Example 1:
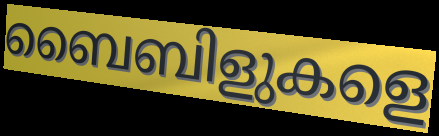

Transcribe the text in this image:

ബൈബിളുകളെ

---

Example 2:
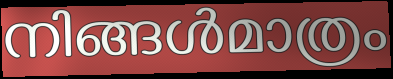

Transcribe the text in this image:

നിങ്ങൾമാത്രം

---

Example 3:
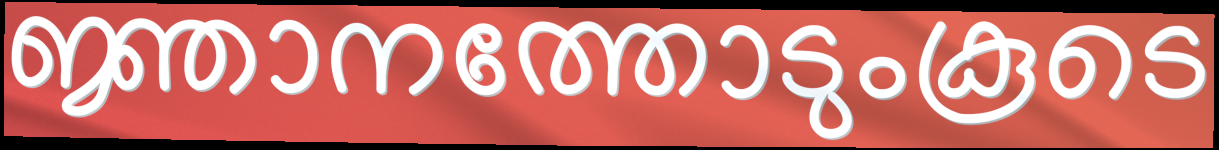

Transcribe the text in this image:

ജ്ഞാനത്തോടുംകൂടെ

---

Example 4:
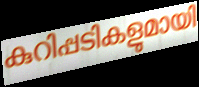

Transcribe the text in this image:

കുറിപ്പടികളുമായി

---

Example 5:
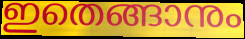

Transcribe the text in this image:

ഇതെങ്ങാനും